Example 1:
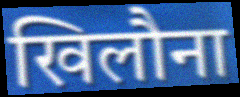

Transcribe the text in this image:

खिलौना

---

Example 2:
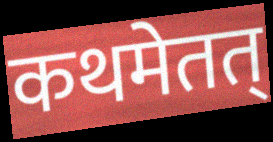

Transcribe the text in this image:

कथमेतत्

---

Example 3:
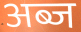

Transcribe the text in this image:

अब्ज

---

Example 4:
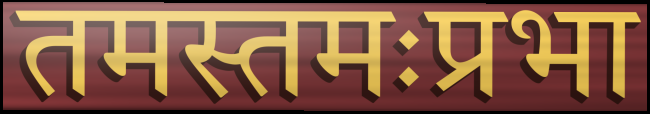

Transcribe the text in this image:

तमस्तमःप्रभा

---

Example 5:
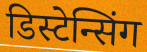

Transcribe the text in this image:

डिस्टेन्सिंग